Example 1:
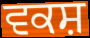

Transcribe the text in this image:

ਵਕਸ਼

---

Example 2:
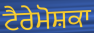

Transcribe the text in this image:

ਟੈਰੇਮੋਸ਼ਕਾ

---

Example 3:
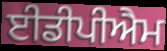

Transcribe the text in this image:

ਈਡੀਪੀਐਮ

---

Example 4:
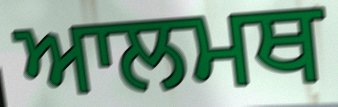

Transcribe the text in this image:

ਆਲਮਥ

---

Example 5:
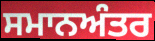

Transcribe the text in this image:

ਸਮਾਨਅੰਤਰ